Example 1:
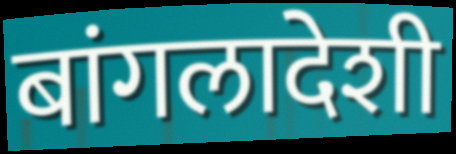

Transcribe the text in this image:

बांगलादेशी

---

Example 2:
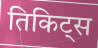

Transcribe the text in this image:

तिकिट्स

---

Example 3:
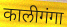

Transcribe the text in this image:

कालीगंगा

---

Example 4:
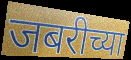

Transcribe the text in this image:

जबरीच्या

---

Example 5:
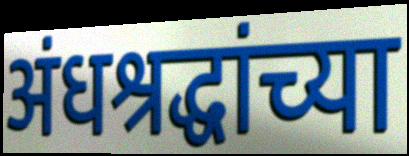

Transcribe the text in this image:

अंधश्रद्धांच्या